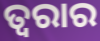
ତ୍ୱରାର